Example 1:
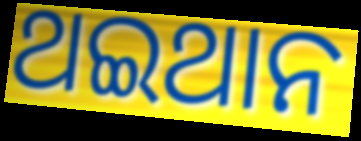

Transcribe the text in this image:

ଥଇଥାନ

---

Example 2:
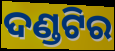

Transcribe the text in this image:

ଦଣ୍ଡଟିର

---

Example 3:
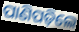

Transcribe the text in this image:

ପାଣିପଡ଼ିଲେ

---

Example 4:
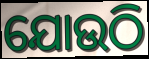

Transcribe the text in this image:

ଯୋଉଠି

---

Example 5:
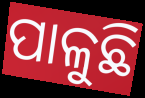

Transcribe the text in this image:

ପାଳୁଛି